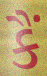
કૈં